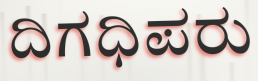
ದಿಗಧಿಪರು